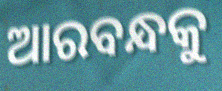
ଆରବନ୍ଧକୁ